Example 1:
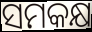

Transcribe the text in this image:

ସମକକ୍ଷ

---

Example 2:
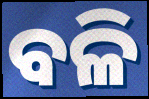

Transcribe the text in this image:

ବଳି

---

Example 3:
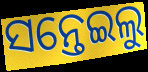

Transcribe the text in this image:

ସନ୍ତେଇଲୁ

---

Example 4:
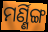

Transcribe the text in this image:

ମର୍ଣ୍ଣିଙ୍ଗ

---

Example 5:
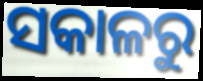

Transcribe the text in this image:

ସକାଳରୁ